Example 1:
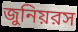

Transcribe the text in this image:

জুনিয়রস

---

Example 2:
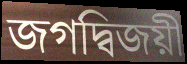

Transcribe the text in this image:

জগদ্বিজয়ী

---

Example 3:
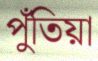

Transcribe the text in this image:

পুঁতিয়া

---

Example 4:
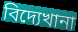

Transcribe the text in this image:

বিদ্যেখানা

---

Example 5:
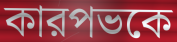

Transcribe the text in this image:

কারপভকে